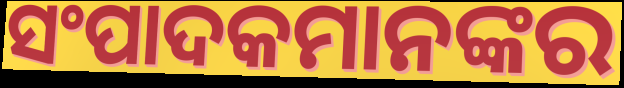
ସଂପାଦକମାନଙ୍କର